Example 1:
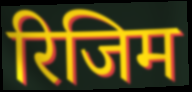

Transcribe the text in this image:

रिजिम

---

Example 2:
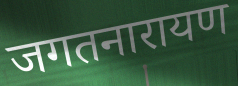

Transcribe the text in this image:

जगतनारायण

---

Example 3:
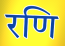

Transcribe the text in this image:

रणि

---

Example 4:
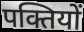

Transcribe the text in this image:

पक्तियों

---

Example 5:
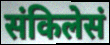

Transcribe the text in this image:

संकिलेसं